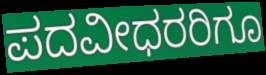
ಪದವೀಧರರಿಗೂ